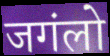
जगंलो